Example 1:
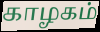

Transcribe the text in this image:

காழகம்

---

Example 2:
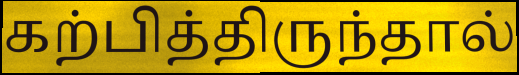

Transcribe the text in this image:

கற்பித்திருந்தால்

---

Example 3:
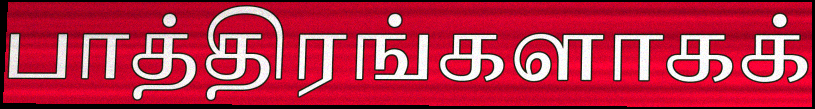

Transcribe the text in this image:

பாத்திரங்களாகக்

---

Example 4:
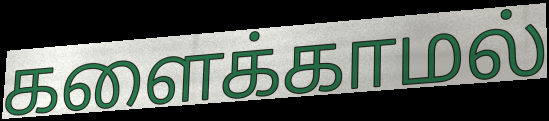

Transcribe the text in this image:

களைக்காமல்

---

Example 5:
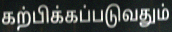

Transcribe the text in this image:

கற்பிக்கப்படுவதும்